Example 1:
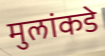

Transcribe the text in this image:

मुलांकडे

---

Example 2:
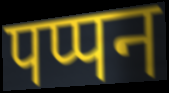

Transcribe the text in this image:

पप्पन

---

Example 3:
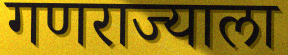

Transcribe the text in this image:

गणराज्याला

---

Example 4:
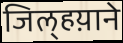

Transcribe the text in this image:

जिल्हय़ाने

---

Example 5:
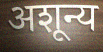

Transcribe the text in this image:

अशून्य